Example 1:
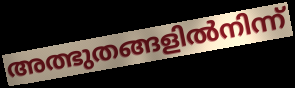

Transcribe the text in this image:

അത്ഭുതങ്ങളിൽനിന്ന്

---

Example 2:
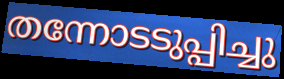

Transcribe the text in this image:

തന്നോടടുപ്പിച്ചു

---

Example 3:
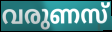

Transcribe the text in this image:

വരുണസ്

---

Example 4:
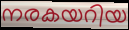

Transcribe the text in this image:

നരകയറിയ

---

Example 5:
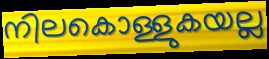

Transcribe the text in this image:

നിലകൊള്ളുകയല്ല